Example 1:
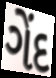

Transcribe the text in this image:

ગેંદ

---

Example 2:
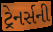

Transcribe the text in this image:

ટ્રેનર્સની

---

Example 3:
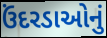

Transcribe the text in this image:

ઉંદરડાઓનું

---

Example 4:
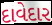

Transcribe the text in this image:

દાવેદાર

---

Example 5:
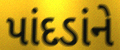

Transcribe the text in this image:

પાંદડાંને